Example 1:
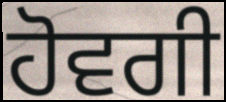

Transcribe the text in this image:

ਹੋਵਗੀ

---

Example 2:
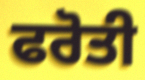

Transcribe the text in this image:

ਫਰੋਤੀ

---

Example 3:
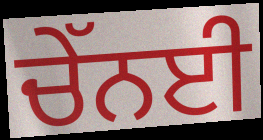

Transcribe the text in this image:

ਚੇੱਨਈ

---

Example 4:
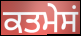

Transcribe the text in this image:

ਕਤਮੇਸਂ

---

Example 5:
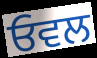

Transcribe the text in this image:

ਓਵਲ